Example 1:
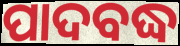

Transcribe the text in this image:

ପାଦବଦ୍ଧ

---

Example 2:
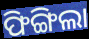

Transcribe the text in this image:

ଫିଙ୍ଗିଲା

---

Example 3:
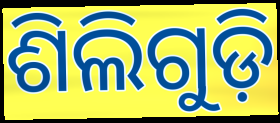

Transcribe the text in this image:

ଶିଲିଗୁଡ଼ି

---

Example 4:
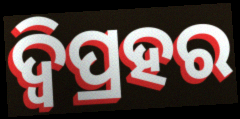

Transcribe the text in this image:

ଦ୍ବିପ୍ରହର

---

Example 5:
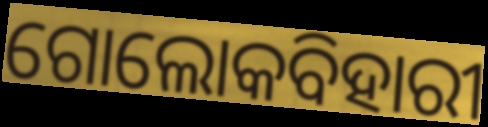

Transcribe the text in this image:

ଗୋଲୋକବିହାରୀ